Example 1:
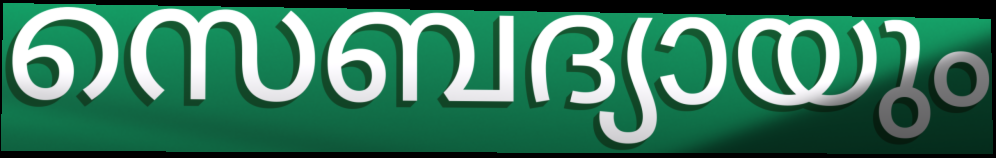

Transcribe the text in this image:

സെബദ്യായും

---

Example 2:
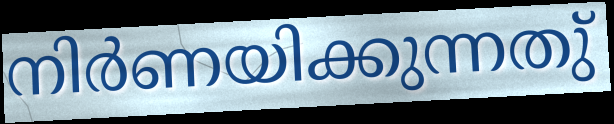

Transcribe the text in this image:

നിർണയിക്കുന്നതു്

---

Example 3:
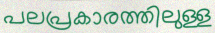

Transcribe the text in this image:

പലപ്രകാരത്തിലുള്ള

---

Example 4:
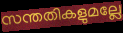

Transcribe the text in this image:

സന്തതികളുമല്ലേ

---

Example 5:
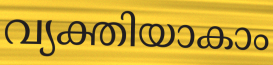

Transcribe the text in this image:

വ്യക്തിയാകാം